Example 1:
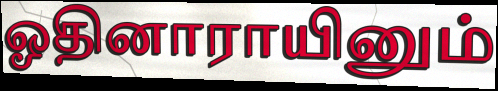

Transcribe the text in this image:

ஓதினாராயினும்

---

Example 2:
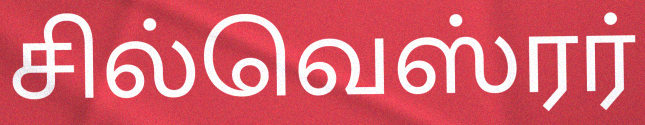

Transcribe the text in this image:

சில்வெஸ்ரர்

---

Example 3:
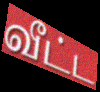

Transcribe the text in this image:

வீட்ட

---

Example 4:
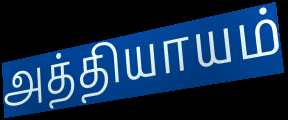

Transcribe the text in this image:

அத்தியாயம்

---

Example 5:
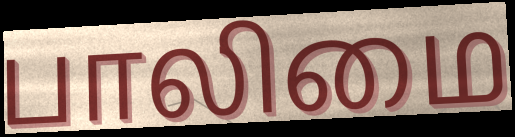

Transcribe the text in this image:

பாலிமை